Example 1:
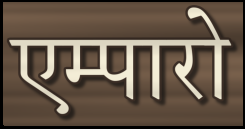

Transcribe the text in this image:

एम्पारो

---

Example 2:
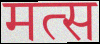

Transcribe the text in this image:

मत्स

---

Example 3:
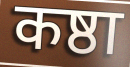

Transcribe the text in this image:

कष्ठा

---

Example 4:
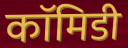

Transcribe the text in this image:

कॉमिडी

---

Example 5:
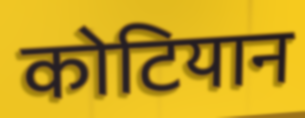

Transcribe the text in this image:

कोटियान